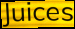
Juices